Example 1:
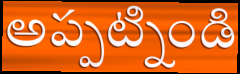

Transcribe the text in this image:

అప్పట్నిండి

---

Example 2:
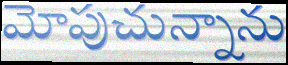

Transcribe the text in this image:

మోపుచున్నాను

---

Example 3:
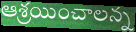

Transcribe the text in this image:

ఆశ్రయించాలన్న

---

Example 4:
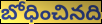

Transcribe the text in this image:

బోధించినది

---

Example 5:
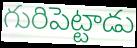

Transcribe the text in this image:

గురిపెట్టాడు